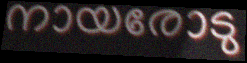
നായരോടു